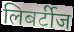
लिबर्टीज